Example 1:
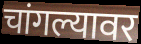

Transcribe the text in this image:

चांगल्यावर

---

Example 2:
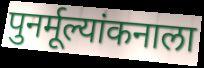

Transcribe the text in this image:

पुनर्मूल्यांकनाला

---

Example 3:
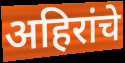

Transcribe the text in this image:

अहिरांचे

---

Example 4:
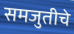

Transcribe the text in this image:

समजुतीचे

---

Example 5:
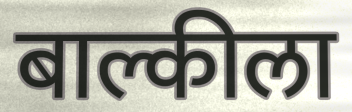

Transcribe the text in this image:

बाल्कीला